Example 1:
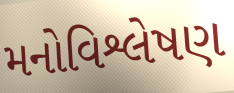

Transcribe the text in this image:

મનોવિશ્લેષણ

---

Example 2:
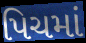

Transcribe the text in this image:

પિચમાં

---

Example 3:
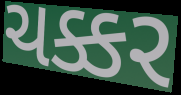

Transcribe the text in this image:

ચક્કર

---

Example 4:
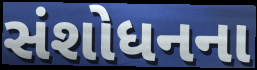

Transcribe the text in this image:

સંશોધનના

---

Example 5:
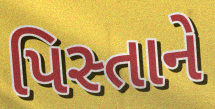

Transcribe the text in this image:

પિસ્તાને